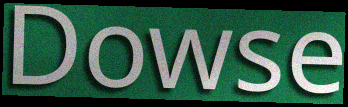
Dowse